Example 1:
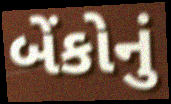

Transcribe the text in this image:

બેંકોનું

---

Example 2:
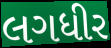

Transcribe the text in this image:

લગધીર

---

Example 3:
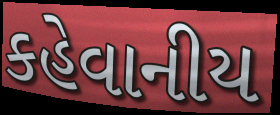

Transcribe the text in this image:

કહેવાનીય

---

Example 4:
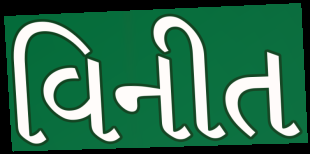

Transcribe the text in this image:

વિનીત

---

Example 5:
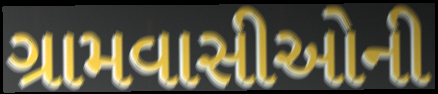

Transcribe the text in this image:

ગ્રામવાસીઓની